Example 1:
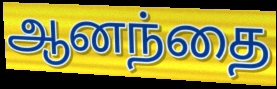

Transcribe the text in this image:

ஆனந்தை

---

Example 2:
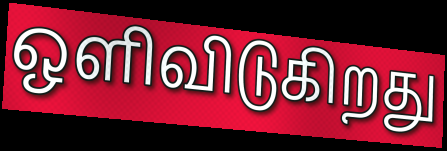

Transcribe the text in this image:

ஒளிவிடுகிறது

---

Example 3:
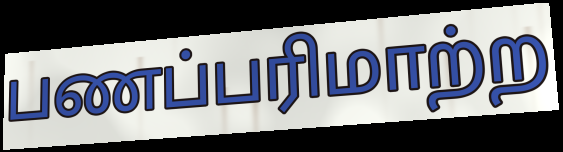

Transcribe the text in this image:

பணப்பரிமாற்ற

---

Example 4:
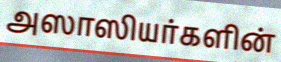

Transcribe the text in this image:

அஸாஸியர்களின்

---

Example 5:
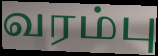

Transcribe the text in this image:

வரம்பு